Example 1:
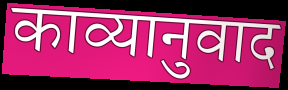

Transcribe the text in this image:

काव्यानुवाद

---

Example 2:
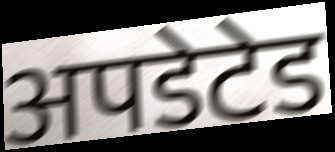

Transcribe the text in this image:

अपडेटेड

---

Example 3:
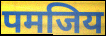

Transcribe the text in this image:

पमजिय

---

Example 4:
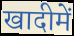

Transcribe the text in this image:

खादीमें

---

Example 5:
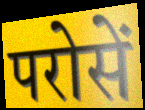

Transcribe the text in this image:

परोसें